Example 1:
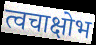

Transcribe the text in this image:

त्वचाक्षोभ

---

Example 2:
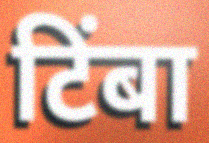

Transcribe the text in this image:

टिंबा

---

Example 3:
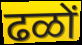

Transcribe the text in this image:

ढळों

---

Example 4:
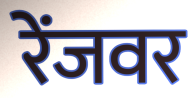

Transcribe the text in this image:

रेंजवर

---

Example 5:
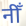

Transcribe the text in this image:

नीँ